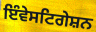
ਇੰਵੇਸਟਿਗੇਸ਼ਨ